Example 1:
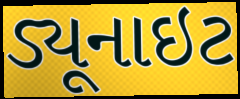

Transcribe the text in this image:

ડ્યૂનાઇટ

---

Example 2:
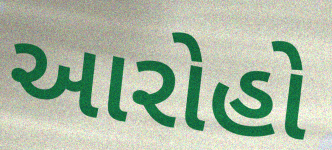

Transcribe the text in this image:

આરોહો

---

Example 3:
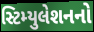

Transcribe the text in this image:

સ્ટિમ્યુલેશનનો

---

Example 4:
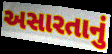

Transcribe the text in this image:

અસારતાનું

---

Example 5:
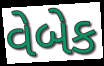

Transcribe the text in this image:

વેબેક